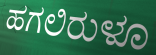
ಹಗಲಿರುಳೂ